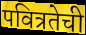
पवित्रतेची